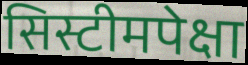
सिस्टीमपेक्षा